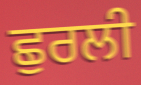
ਛੁਰਲੀ